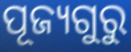
ପୂଜ୍ୟଗୁରୁ